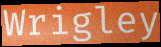
Wrigley